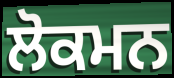
ਲੋਕਮਨ